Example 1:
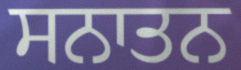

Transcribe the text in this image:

ਸਨਾਤਨ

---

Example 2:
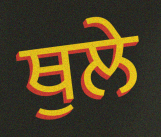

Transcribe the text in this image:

ਥੁਲੇ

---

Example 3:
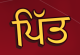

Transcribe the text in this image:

ਪਿੱਤ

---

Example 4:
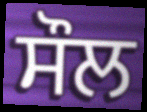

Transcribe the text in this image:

ਸੌਲ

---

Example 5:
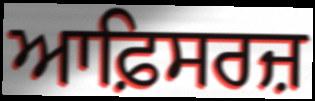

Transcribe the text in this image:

ਆਫ਼ਿਸਰਜ਼